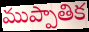
ముప్పాతిక